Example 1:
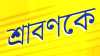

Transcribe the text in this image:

শ্রাবণকে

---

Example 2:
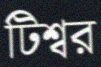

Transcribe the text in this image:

টিশ্বর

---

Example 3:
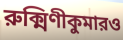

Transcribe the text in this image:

রুক্মিণীকুমারও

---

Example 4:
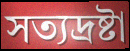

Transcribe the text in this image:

সত্যদ্রষ্টা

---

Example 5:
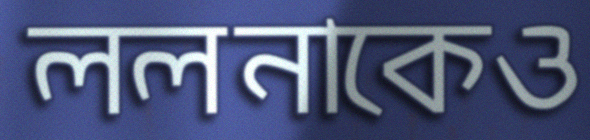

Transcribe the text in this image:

ললনাকেও